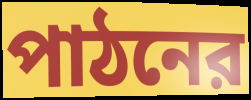
পাঠনের